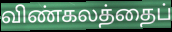
விண்கலத்தைப்